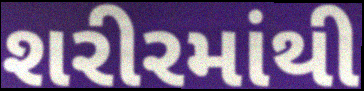
શરીરમાંથી